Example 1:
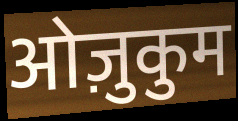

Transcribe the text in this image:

ओज़ुकुम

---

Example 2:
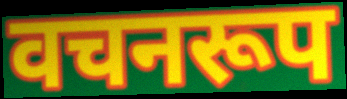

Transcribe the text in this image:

वचनरूप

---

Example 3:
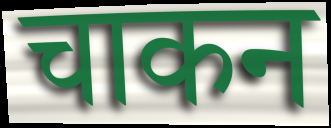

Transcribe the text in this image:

चाकन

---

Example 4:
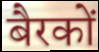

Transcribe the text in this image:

बैरकों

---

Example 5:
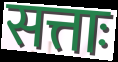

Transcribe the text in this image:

सत्ताः